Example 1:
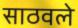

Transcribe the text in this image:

साठवले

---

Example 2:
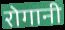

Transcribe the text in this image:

रोगानी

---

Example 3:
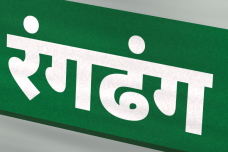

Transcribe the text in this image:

रंगढंग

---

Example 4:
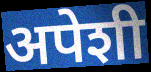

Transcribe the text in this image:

अपेशी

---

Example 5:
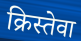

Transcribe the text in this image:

क्रिस्तेवा